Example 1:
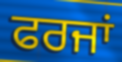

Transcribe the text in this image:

ਫਰਜਾਂ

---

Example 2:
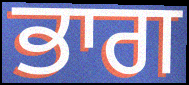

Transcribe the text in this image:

ਭਾਗ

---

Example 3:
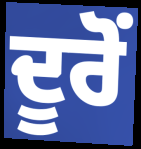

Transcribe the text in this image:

ਦੂਰੋਂ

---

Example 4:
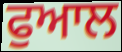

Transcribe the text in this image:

ਫੁਆਲ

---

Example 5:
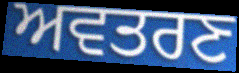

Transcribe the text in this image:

ਅਵਤਰਣ